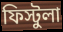
ফিস্টুলা